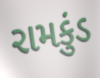
રામકુંડ